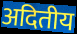
अदितीय